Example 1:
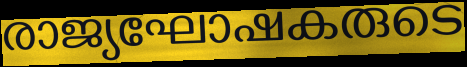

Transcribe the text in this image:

രാജ്യഘോഷകരുടെ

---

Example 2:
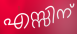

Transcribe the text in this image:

എസ്സിന്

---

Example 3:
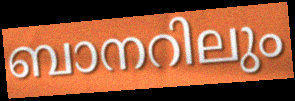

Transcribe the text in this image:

ബാനറിലും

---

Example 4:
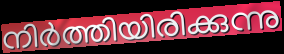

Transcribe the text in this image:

നിർത്തിയിരിക്കുന്നു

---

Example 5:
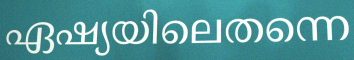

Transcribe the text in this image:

ഏഷ്യയിലെതന്നെ